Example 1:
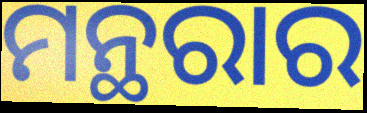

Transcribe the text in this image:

ମନ୍ଥରାର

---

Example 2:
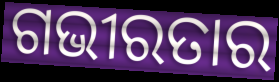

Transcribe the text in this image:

ଗଭୀରତାର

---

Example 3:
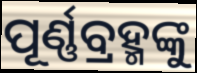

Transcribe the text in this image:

ପୂର୍ଣ୍ଣବ୍ରହ୍ମଙ୍କୁ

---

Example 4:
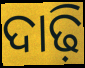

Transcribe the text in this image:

ଦାଢ଼ି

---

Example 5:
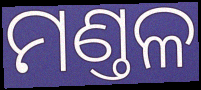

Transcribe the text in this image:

ମଣ୍ତଳ